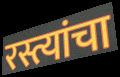
रस्त्यांचा